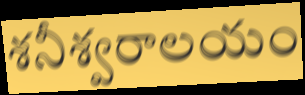
శనీశ్వరాలయం